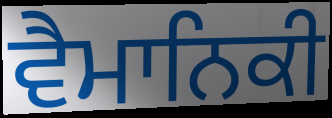
ਵੈਮਾਨਿਕੀ